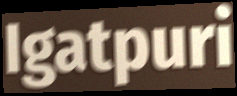
Igatpuri